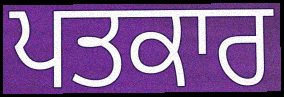
ਪਤਕਾਰ